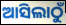
ଆସିଲାଠୁଁ